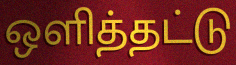
ஒளித்தட்டு